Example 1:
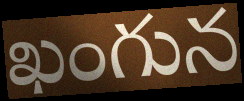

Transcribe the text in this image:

ఖంగున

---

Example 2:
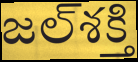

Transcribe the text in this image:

జల్‌శక్తి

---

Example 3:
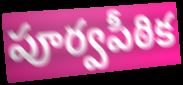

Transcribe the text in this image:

పూర్వపీఠిక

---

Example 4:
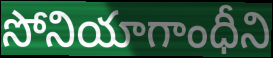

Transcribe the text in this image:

సోనియాగాంధీని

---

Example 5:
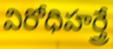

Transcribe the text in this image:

విరోధిహర్త్రే